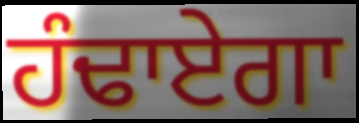
ਹੰਢਾਏਗਾ